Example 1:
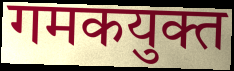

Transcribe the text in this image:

गमकयुक्त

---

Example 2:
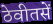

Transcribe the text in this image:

ठेवीतसें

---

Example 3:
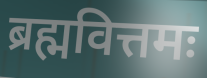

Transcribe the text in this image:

ब्रह्मवित्तमः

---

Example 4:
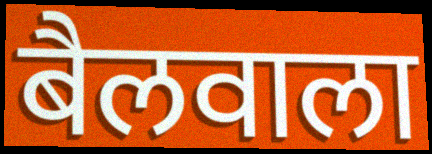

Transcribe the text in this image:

बैलवाला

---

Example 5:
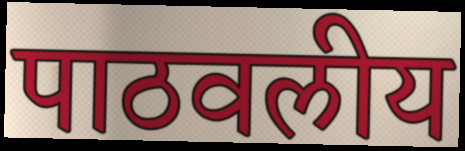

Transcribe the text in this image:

पाठवलीय